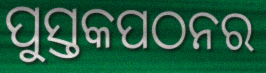
ପୁସ୍ତକପଠନର